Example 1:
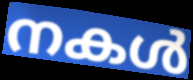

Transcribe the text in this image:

നകൾ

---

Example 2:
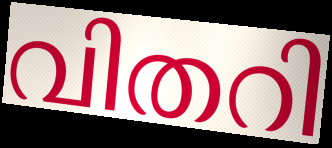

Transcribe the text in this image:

വിതറി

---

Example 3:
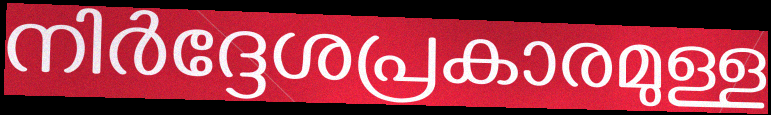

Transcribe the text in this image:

നിർദ്ദേശപ്രകാരമുള്ള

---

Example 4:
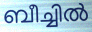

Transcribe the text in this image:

ബീച്ചിൽ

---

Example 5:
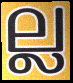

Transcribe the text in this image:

ല്ല